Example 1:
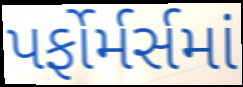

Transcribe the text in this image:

પર્ફોર્મર્સમાં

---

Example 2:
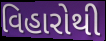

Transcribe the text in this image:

વિહારોથી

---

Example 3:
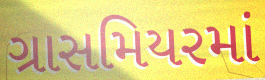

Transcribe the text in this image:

ગ્રાસમિયરમાં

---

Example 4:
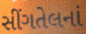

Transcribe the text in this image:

સીંગતેલનાં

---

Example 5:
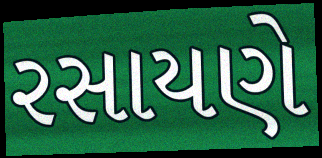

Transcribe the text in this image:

રસાયણે